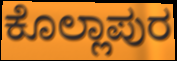
ಕೊಲ್ಲಾಪುರ